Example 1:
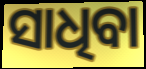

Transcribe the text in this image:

ସାଧିବା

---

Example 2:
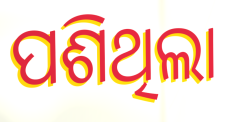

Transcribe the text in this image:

ପଶିଥିଲା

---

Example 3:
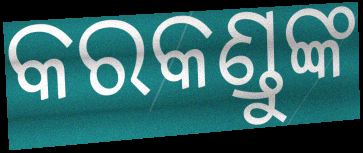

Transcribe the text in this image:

କରକଣ୍ଡୁଙ୍କ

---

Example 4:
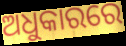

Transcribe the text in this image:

ଅଧୁକାରରେ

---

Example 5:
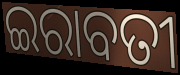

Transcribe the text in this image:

ଇରାବତୀ